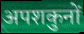
अपशकुनों